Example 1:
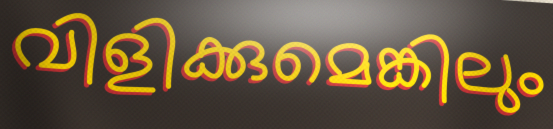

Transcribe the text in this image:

വിളിക്കുമെങ്കിലും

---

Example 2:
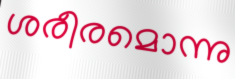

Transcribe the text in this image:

ശരീരമൊന്നു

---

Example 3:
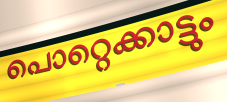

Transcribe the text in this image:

പൊറ്റെക്കാട്ടും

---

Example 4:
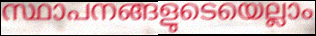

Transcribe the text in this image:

സ്ഥാപനങ്ങളുടെയെല്ലാം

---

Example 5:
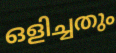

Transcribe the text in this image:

ഒളിച്ചതും